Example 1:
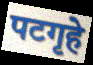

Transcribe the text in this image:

पटगृहे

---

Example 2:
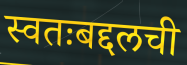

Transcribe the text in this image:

स्वतःबद्दलची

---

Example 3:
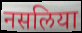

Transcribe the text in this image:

नसलिया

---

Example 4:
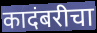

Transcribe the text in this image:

कादंबरीचा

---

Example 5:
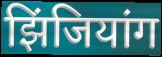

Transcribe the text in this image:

झिंजियांग